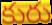
కురు